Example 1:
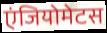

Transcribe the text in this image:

एंजियोमेटस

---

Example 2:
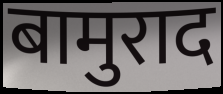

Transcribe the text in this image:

बामुराद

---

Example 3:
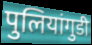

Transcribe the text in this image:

पुलियांगुडी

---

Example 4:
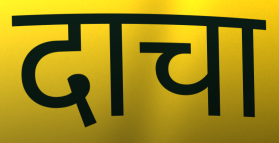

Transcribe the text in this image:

दाचा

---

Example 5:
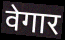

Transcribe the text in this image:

वेगार